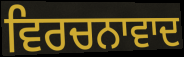
ਵਿਰਚਨਾਵਾਦ